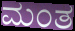
ಮಂತ